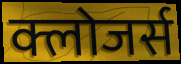
क्लोजर्स